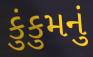
કુંકુમનું